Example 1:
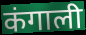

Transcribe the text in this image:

कंगाली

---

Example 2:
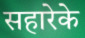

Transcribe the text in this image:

सहारेके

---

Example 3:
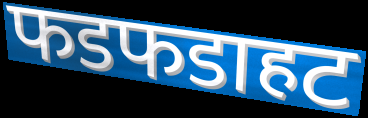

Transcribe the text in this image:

फडफडाहट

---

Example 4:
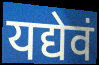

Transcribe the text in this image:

यद्येवं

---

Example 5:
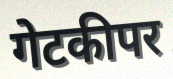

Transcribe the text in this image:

गेटकीपर